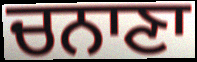
ਚਨਾਣਾ